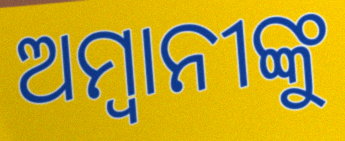
ଅମ୍ବାନୀଙ୍କୁ